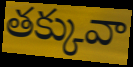
తక్కువా